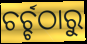
ଚର୍ଚ୍ଚଠାରୁ